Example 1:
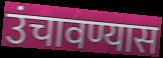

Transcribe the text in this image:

उंचावण्यास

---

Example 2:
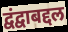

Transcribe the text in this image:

द्वंद्वाबद्दल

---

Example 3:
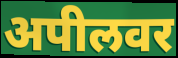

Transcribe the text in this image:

अपीलवर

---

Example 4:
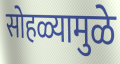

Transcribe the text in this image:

सोहळ्यामुळे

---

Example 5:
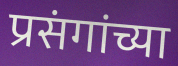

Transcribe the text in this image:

प्रसंगांच्या